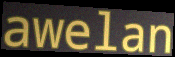
awelan